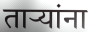
ताऱ्यांना